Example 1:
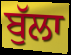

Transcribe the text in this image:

ਬੁੱਲਾ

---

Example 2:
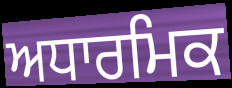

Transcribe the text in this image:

ਅਧਾਰਮਿਕ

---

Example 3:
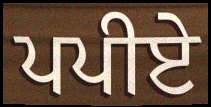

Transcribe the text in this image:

ਪਪੀਏ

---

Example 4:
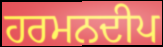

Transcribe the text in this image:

ਹਰਮਨਦੀਪ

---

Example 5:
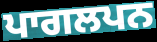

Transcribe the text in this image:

ਪਾਗਲਪਨ